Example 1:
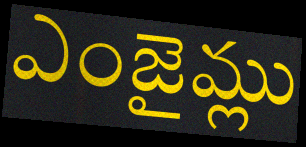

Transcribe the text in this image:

ఎంజైమ్లు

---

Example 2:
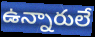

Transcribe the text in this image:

ఉన్నారులే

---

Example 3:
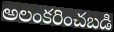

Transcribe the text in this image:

అలంకరించబడి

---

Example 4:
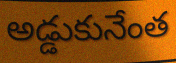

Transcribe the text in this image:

అడ్డుకునేంత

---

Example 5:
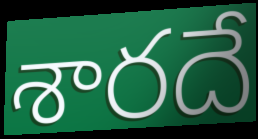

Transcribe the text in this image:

శారదే